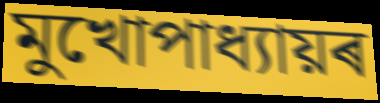
মুখোপাধ্যায়ৰ